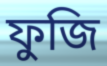
ফুজি